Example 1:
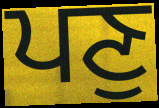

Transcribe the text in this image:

ਪਣੁ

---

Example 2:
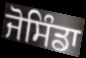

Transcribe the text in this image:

ਜੋਸਿੰਡਾ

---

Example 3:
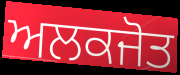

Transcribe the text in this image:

ਅਲਕਜੋਤ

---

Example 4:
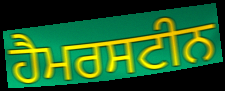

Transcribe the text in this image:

ਹੈਮਰਸਟੀਨ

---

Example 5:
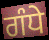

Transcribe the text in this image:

ਗੰਧੇ